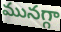
మునగ్గా